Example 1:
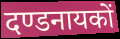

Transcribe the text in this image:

दण्डनायकों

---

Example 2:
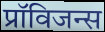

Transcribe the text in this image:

प्रॉविजन्स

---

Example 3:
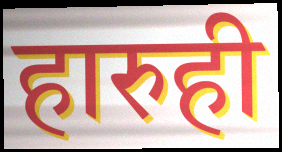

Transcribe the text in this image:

हारुही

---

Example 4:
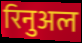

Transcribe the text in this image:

रिनुअल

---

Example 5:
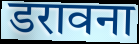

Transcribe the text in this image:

डरावना